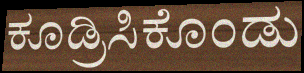
ಕೂಡ್ರಿಸಿಕೊಂಡು